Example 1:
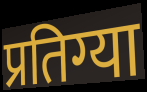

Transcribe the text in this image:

प्रतिग्या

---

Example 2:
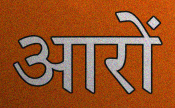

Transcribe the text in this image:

आरों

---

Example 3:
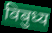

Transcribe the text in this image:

विबुध्य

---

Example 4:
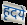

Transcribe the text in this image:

हृदये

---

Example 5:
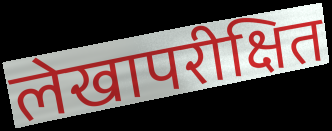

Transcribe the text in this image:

लेखापरीक्षित